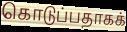
கொடுப்பதாகக்